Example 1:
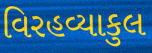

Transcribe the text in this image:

વિરહવ્યાકુલ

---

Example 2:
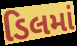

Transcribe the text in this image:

ડિલમાં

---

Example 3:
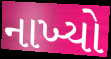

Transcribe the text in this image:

નાખ્યો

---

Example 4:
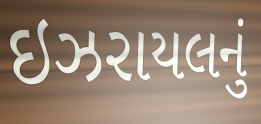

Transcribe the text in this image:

ઇઝરાયલનું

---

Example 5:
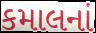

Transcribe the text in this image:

કમાલનાં